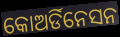
କୋଅର୍ଡିନେସନ